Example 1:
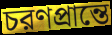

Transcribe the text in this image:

চরণপ্রান্তে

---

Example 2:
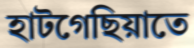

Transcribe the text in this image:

হাটগেছিয়াতে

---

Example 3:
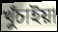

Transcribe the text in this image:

খুঁচাইয়া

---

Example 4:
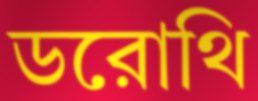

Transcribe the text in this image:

ডরোথি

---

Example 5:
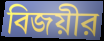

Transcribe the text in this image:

বিজয়ীর